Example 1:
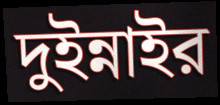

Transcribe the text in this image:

দুইন্নাইর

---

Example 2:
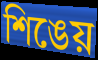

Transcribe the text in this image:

শিঙেয়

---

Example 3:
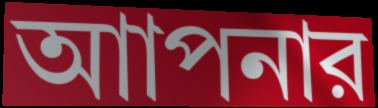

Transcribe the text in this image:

আাপনার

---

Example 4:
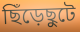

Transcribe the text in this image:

ছিঁড়েছুটে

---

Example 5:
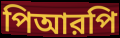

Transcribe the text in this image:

পিআরপি